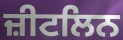
ਜ਼ੀਟਲਿਨ